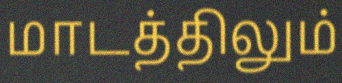
மாடத்திலும்